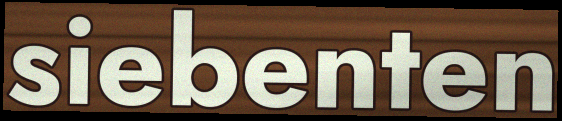
siebenten